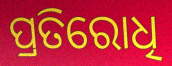
ପ୍ରତିରୋଧି